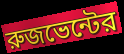
রুজভেন্টের